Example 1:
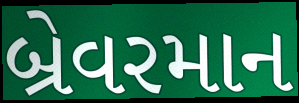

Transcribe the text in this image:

બ્રેવરમાન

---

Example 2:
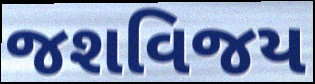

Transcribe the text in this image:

જશવિજય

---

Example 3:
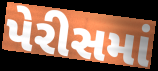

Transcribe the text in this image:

પેરીસમાં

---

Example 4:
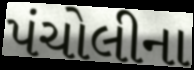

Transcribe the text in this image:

પંચોલીના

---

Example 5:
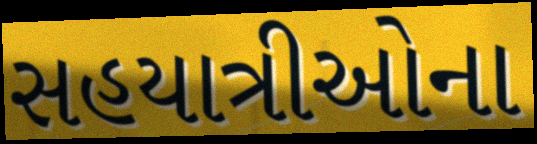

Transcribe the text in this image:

સહયાત્રીઓના